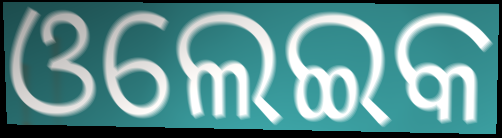
ଓଲେଇକ